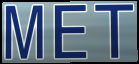
MET